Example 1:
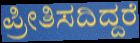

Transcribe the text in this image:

ಪ್ರೀತಿಸದಿದ್ದರೆ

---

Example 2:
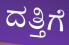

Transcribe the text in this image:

ದತ್ತಿಗೆ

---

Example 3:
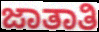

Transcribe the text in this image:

ಜಾತಾತಿ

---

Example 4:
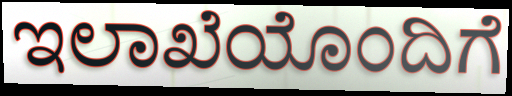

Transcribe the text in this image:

ಇಲಾಖೆಯೊಂದಿಗೆ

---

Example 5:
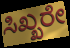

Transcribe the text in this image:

ಸಿಖ್ಖರೇ